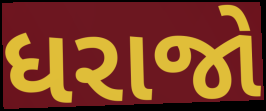
ધરાજો